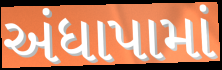
અંધાપામાં